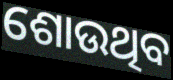
ଶୋଉଥିବ